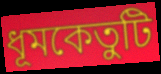
ধূমকেতুটি